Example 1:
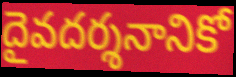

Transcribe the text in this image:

దైవదర్శనానికో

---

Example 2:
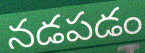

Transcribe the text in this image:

నడపడం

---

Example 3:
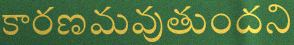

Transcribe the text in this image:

కారణమవుతుందని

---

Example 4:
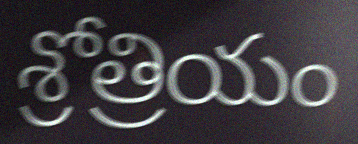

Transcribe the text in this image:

శ్రోత్రియం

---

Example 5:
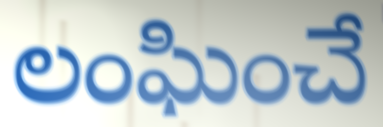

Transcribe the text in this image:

లంఘించే